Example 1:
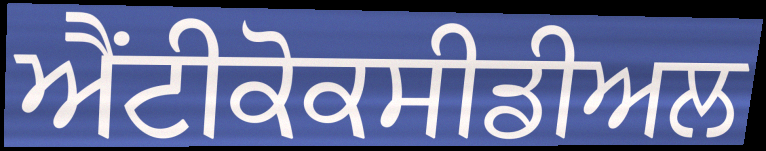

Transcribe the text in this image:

ਐਂਟੀਕੋਕਸੀਡੀਅਲ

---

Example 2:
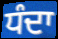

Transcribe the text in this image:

ਧੰਦਾ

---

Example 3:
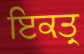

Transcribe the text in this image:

ਇਕਤ੍ਰ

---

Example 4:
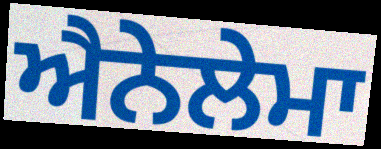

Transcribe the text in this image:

ਐਨੇਲੇਮਾ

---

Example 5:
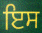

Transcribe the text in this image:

ਇਸ